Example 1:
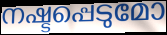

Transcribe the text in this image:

നഷ്ടപ്പെടുമോ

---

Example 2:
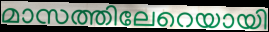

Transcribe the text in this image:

മാസത്തിലേറെയായി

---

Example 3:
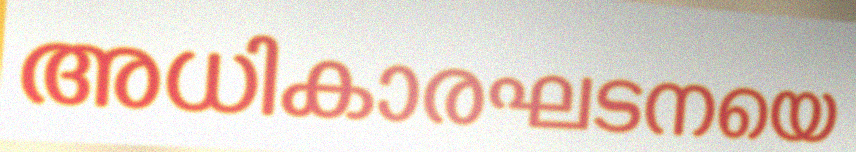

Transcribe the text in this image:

അധികാരഘടനയെ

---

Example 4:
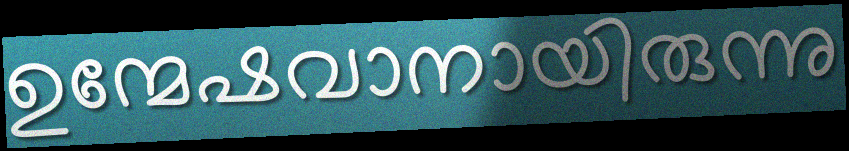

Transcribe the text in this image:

ഉന്മേഷവാനായിരുന്നു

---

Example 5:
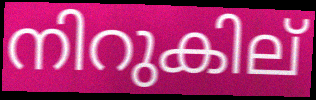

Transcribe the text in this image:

നിറുകില്